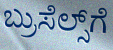
ಬ್ರುಸೆಲ್ಸ್‌ಗೆ